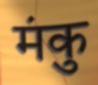
मंकु